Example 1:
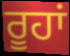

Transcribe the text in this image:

ਰੂਹਾਂ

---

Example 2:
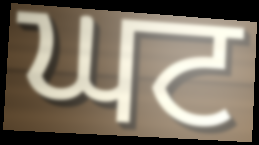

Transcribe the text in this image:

ਘਟ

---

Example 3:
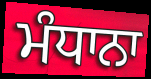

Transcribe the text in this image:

ਮੰਧਾਨਾ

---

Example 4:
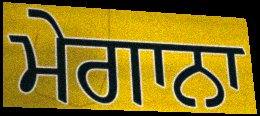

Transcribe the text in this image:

ਮੇਗਾਨਾ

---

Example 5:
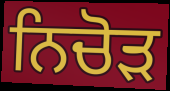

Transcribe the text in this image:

ਨਿਚੋੜ